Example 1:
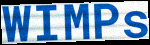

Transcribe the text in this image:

WIMPs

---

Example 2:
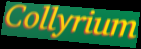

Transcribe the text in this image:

Collyrium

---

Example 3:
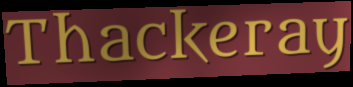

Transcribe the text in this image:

Thackeray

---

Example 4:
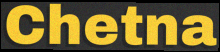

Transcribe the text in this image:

Chetna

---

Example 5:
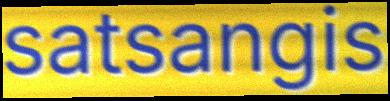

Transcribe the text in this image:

satsangis